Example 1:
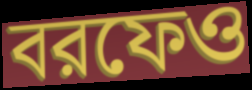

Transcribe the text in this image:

বরফেও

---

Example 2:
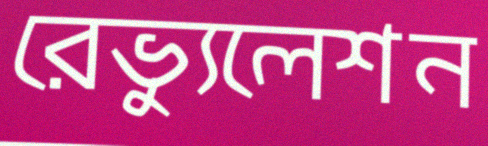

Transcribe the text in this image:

রেভ্যুলেশন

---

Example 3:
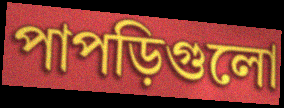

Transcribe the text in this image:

পাপড়িগুলো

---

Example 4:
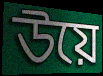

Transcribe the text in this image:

উয়ে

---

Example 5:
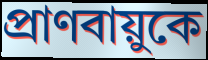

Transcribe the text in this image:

প্রাণবায়ুকে